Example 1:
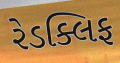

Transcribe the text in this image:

રેડક્લિફ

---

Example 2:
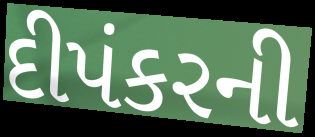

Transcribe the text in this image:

દીપંકરની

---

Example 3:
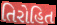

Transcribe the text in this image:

તિરોહિત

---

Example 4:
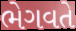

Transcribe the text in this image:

ભેગવતે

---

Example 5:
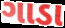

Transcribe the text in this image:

ગાડા